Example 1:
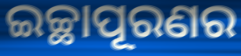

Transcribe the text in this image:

ଇଚ୍ଛାପୂରଣର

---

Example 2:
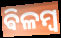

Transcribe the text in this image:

ଵିଳମ୍ବ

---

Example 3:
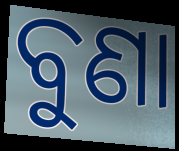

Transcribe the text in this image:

ବୁଣା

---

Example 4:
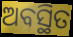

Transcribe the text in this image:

ଅବସ୍ଥିତ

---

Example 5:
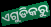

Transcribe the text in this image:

ଏଗୁଡିକରୁ